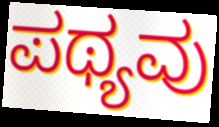
ಪಥ್ಯವು